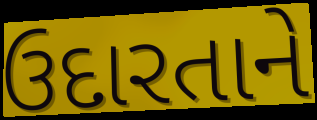
ઉદારતાને